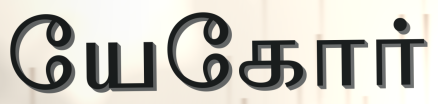
யேகோர்